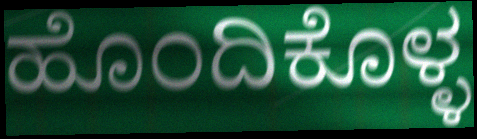
ಹೊಂದಿಕೊಳ್ಳ